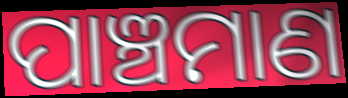
ପାଞ୍ଚମାଣ